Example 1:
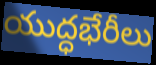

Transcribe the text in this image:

యుద్ధభేరీలు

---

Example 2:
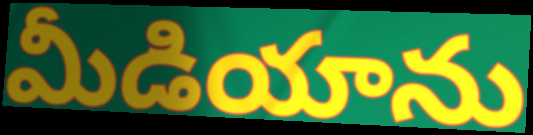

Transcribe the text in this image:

మీడియాను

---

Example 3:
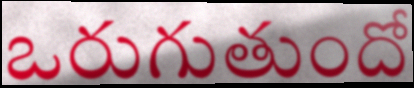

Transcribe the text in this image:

ఒరుగుతుందో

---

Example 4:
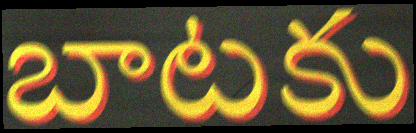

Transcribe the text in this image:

బాటకు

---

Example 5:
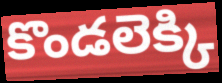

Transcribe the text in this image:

కొండలెక్కి